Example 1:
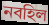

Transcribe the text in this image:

নবহিল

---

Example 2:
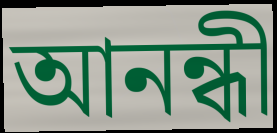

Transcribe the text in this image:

আনন্ধী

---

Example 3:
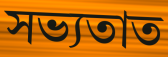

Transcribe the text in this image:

সভ্যতাত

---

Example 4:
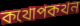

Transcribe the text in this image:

কথোপকথন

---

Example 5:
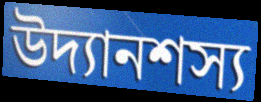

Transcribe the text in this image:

উদ্যানশস্য